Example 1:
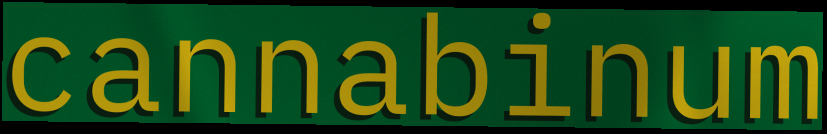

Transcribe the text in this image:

cannabinum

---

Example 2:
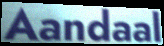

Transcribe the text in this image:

Aandaal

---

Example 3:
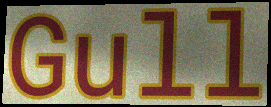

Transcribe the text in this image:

Gull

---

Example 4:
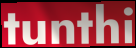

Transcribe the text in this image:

tunthi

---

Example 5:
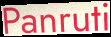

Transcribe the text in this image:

Panruti